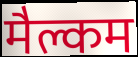
मैल्कम